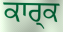
ਕਾਰ੍ਕ